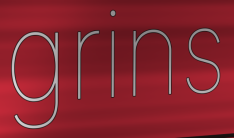
grins